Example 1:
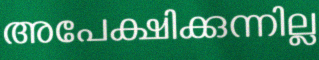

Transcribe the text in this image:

അപേക്ഷിക്കുന്നില്ല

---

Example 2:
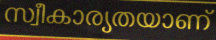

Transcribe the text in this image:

സ്വീകാര്യതയാണ്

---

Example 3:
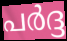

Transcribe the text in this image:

പർദ്ദ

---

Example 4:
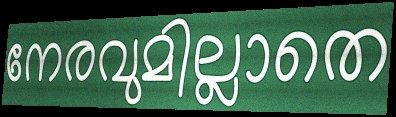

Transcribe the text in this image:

നേരവുമില്ലാതെ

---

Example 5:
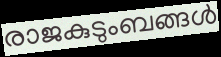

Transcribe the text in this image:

രാജകുടുംബങ്ങൾ